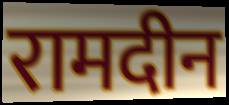
रामदीन